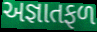
અજ્ઞાતફળ